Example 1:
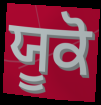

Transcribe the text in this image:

ਯੂਕੋ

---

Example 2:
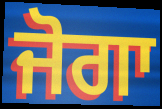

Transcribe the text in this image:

ਜੋਗਾ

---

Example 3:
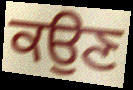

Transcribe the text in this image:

ਕਉਣ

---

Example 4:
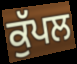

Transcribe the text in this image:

ਕੁੱਪਲ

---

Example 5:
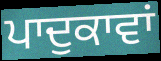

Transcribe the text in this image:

ਪਾਦੁਕਾਵਾਂ